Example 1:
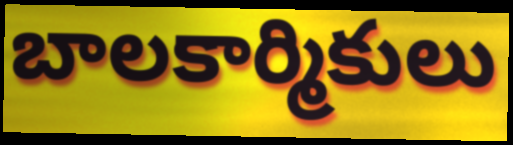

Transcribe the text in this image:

బాలకార్మికులు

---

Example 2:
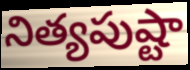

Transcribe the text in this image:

నిత్యపుష్టా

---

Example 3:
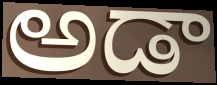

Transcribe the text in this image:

అడా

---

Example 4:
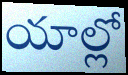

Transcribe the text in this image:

యాల్లో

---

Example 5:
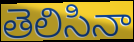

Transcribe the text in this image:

తెలిసినా